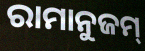
ରାମାନୁଜମ୍